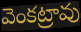
వెంకట్రావు